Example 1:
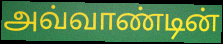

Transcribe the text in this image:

அவ்வாண்டின்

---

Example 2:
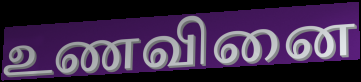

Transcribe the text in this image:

உணவினை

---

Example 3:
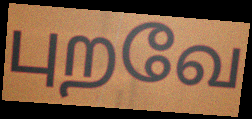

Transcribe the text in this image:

புறவே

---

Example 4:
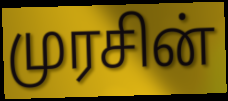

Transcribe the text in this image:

முரசின்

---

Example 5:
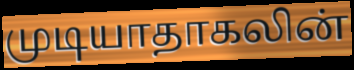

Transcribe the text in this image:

முடியாதாகலின்